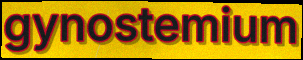
gynostemium